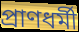
প্রাণধর্মী